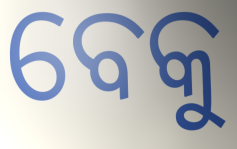
ବେକୁ